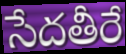
సేదతీరే